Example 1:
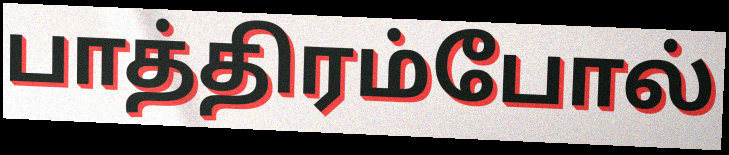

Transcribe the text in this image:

பாத்திரம்போல்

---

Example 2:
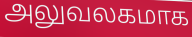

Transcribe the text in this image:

அலுவலகமாக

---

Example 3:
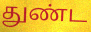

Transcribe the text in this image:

துண்ட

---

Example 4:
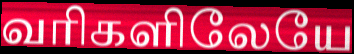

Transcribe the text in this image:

வரிகளிலேயே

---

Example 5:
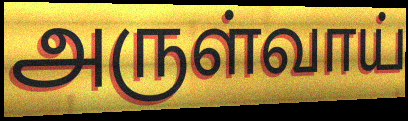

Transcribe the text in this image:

அருள்வாய்